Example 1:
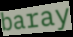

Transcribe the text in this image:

baray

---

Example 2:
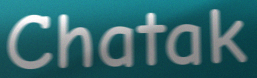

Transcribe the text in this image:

Chatak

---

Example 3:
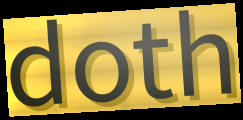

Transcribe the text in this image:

doth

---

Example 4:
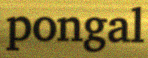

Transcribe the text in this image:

pongal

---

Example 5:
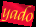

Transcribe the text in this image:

yado